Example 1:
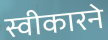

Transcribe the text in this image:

स्वीकारने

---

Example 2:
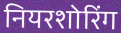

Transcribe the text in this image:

नियरशोरिंग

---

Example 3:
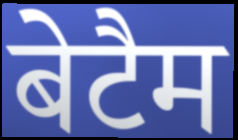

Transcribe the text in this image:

बेटैम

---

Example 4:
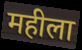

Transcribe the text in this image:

महीला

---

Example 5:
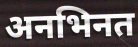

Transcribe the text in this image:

अनभिनत